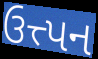
ઉત્ત્પન